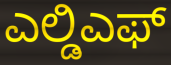
ಎಲ್ಡಿಎಫ್